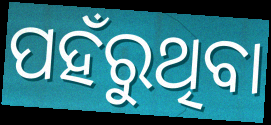
ପହଁରୁଥିବା